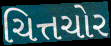
ચિત્તચોર